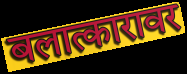
बलात्कारावर